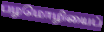
பழமொழியைப்